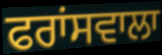
ਫਰਾਂਸਵਾਲਾ